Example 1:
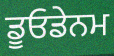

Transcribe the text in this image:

ਡੂਓਡੇਨਮ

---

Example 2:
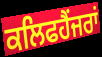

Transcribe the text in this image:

ਕਲਿਫਹੈਂਜਰਾਂ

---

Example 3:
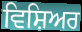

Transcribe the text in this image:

ਵਿਸ਼ਿਅਰ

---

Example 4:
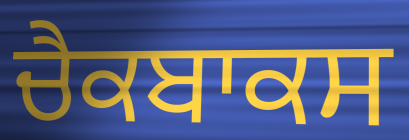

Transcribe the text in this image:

ਚੈਕਬਾਕਸ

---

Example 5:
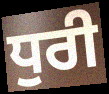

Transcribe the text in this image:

ਧੁਰੀ